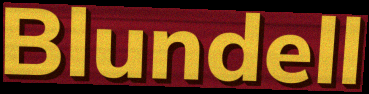
Blundell